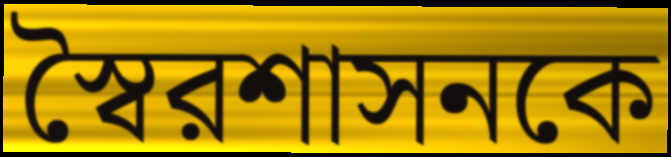
স্বৈরশাসনকে